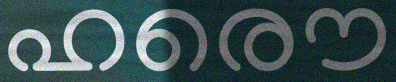
ഹരൌ